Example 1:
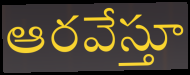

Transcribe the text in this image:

ఆరవేస్తూ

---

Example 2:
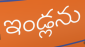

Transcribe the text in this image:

ఇండ్లను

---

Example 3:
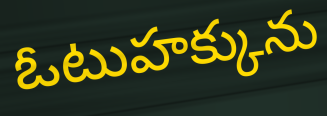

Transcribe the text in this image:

ఓటుహక్కును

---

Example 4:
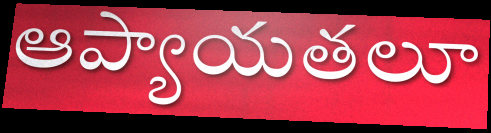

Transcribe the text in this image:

ఆప్యాయతలూ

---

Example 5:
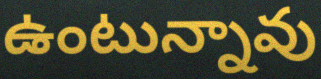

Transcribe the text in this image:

ఉంటున్నావు